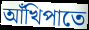
আঁখিপাতে